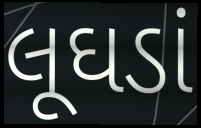
લૂઘડાં